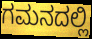
ಗಮನದಲ್ಲಿ